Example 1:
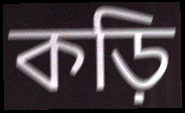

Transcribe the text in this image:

কড়ি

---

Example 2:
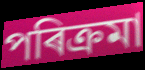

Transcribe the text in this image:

পৰিক্ৰমা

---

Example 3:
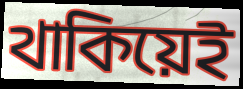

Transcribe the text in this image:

থাকিয়েই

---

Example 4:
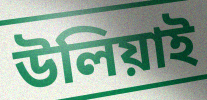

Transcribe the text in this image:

উলিয়াই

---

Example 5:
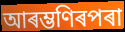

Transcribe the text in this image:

আৰম্ভণিৰপৰা